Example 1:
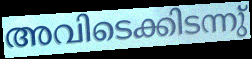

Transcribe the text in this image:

അവിടെക്കിടന്നു്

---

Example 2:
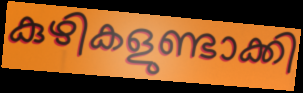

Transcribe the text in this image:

കുഴികളുണ്ടാക്കി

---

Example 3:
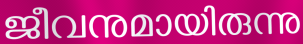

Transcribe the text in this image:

ജീവനുമായിരുന്നു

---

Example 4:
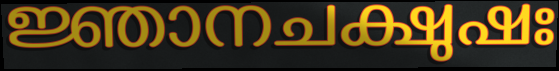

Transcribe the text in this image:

ജ്ഞാനചക്ഷുഷഃ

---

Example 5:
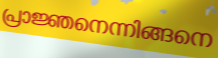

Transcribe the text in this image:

പ്രാജ്ഞനെന്നിങ്ങനെ